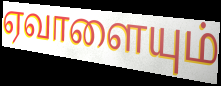
ஏவாளையும்